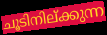
ചൂടിനില്ക്കുന്ന